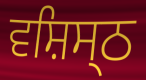
ਵਸ਼ਿਸ੍ਠ